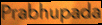
Prabhupada